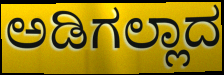
ಅಡಿಗಲ್ಲಾದ